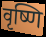
वृष्णि